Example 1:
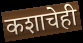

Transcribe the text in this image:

कशाचेही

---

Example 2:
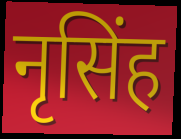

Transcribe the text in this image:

नृसिंह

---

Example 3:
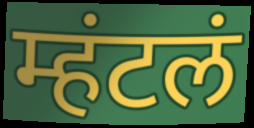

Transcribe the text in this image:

म्हंटलं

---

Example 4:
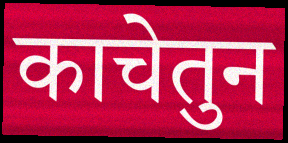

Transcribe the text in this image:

काचेतुन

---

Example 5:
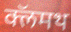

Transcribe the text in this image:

क्लॅमथ